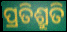
ପ୍ରତିଶ୍ରୁତି